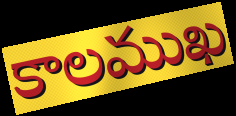
కాలముఖ